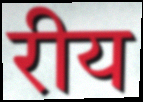
रीय